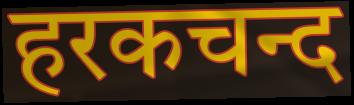
हरकचन्द